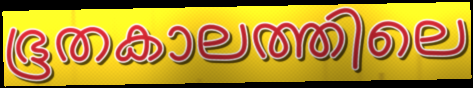
ഭൂതകാലത്തിലെ